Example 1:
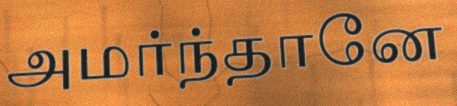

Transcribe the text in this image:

அமர்ந்தானே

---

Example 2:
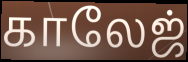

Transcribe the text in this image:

காலேஜ்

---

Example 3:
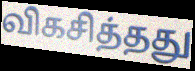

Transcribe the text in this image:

விகசித்தது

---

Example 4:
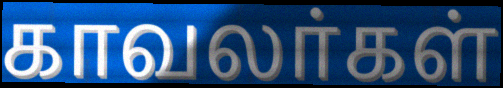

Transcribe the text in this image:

காவலர்கள்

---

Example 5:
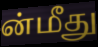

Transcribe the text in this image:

ன்மீது